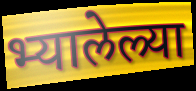
भ्यालेल्या